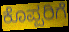
ಕೊಪ್ಪರಿಗೆ